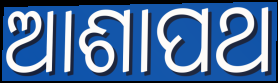
ଆଶାପଥ